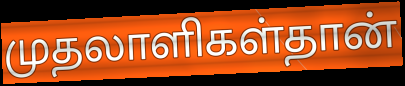
முதலாளிகள்தான்